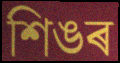
শিঙৰ